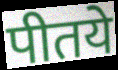
पीतये